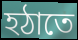
হঠাতে